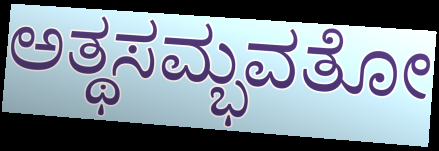
ಅತ್ಥಸಮ್ಭವತೋ